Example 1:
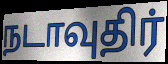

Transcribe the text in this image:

நடாவுதிர்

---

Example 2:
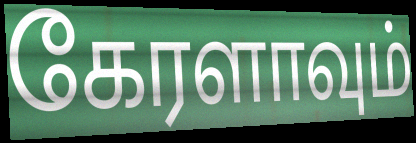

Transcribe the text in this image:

கேரளாவும்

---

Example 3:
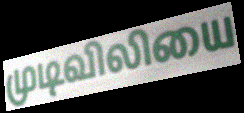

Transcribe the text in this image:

முடிவிலியை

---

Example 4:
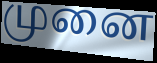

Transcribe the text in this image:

முனை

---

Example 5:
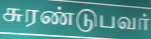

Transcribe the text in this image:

சுரண்டுபவர்